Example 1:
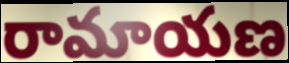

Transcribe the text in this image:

రామాయణ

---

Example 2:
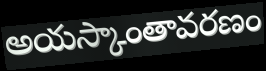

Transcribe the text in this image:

అయస్కాంతావరణం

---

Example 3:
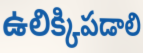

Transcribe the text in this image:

ఉలిక్కిపడాలి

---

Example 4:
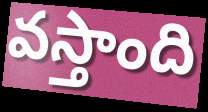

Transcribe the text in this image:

వస్తాంది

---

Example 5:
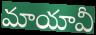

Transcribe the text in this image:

మాయావీ